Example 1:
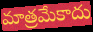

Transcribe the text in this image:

మాత్రమేకాదు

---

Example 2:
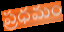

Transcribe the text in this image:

ప్రధమం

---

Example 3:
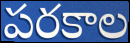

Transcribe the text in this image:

పరకాల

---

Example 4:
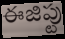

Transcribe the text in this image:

ఈజిప్టు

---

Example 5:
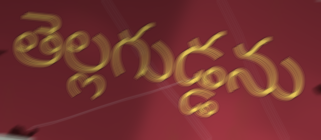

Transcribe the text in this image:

తెల్లగుడ్డను